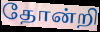
தோன்றி